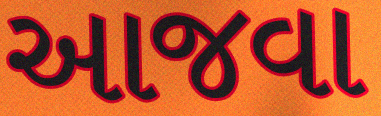
આજવા